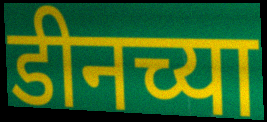
डीनच्या